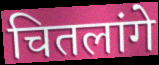
चितलांगे